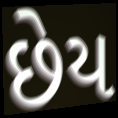
છેય